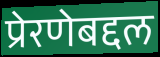
प्रेरणेबद्दल